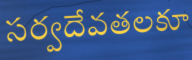
సర్వదేవతలకూ